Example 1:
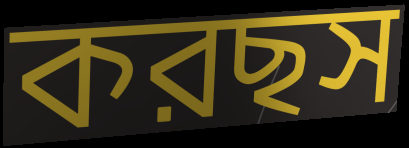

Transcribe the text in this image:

করছস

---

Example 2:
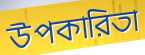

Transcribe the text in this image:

উপকারিতা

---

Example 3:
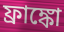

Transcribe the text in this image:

ফ্রাঙ্কো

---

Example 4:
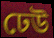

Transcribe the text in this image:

ঢেউ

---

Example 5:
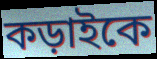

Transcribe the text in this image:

কড়াইকে